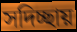
সদিচ্ছায়